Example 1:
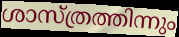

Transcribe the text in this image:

ശാസ്ത്രത്തിന്നും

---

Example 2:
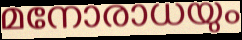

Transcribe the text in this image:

മനോരാധയും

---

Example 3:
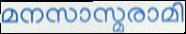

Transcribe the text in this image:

മനസാസ്മരാമി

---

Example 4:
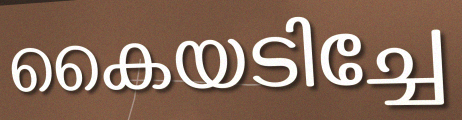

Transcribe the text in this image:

കൈയടിച്ചേ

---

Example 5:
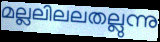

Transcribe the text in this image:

മല്ലലിലലതല്ലുന്നു